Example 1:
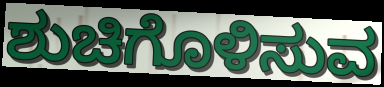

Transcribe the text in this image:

ಶುಚಿಗೊಳಿಸುವ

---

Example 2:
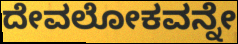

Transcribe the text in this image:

ದೇವಲೋಕವನ್ನೇ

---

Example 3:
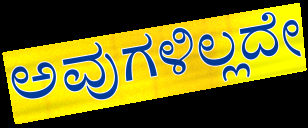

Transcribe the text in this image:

ಅವುಗಳಿಲ್ಲದೇ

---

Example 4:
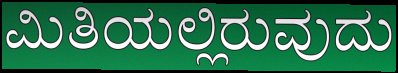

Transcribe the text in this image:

ಮಿತಿಯಲ್ಲಿರುವುದು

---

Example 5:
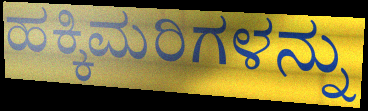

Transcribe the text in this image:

ಹಕ್ಕಿಮರಿಗಳನ್ನು